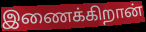
இணைக்கிறான்